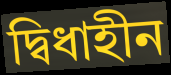
দ্বিধাহীন